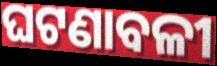
ଘଟଣାବଳୀ